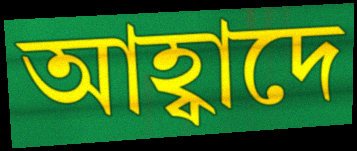
আহ্বাদে